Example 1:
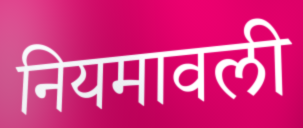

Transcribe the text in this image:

नियमावली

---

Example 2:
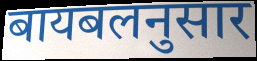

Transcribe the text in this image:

बायबलनुसार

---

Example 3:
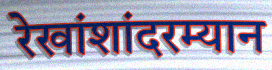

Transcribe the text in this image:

रेखांशांदरम्यान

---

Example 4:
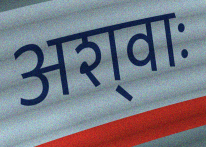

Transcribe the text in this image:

अश्वाः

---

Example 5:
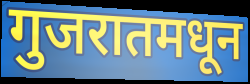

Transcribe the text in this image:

गुजरातमधून